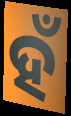
ହଁ